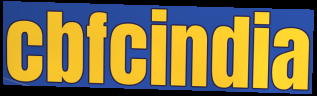
cbfcindia